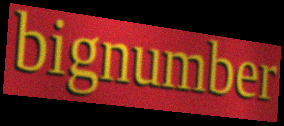
bignumber